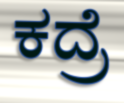
ಕದ್ರೆ